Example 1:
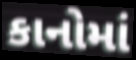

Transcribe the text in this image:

કાનોમાં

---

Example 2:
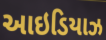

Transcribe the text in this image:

આઇડિયાઝ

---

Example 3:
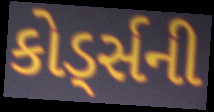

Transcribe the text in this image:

કોર્ડ્સની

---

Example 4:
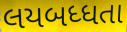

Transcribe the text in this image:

લયબધ્ધતા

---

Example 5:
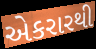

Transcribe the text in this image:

એકરારથી